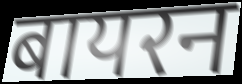
बायरन